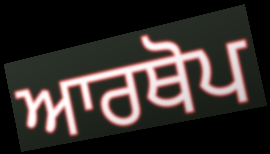
ਆਰਥੋਪ